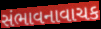
સંભાવનાવાચક